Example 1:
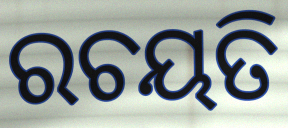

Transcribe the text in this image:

ରଚୟତି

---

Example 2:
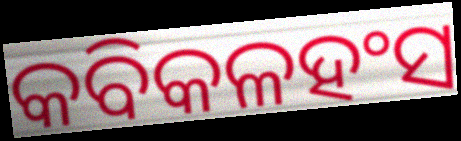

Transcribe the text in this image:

କବିକଳହଂସ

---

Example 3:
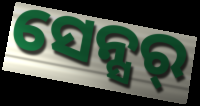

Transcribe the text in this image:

ସେନ୍ସର୍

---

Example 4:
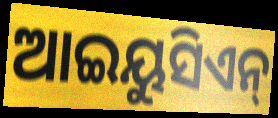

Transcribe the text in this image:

ଆଇୟୁସିଏନ୍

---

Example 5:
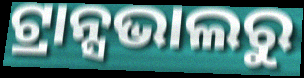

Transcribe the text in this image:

ଟ୍ରାନ୍ସଭାଲରୁ